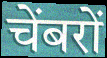
चेंबरों